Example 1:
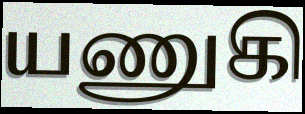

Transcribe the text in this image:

யணுகி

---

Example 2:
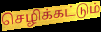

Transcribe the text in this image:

செழிக்கட்டும்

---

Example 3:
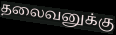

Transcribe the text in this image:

தலைவனுக்கு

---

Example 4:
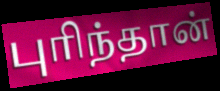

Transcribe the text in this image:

புரிந்தான்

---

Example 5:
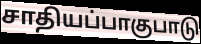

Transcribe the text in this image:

சாதியப்பாகுபாடு